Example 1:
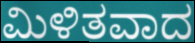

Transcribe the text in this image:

ಮಿಳಿತವಾದ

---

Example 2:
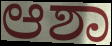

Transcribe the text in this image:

ಆಶಾ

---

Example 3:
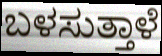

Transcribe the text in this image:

ಬಳಸುತ್ತಾಳೆ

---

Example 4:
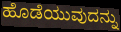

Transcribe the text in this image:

ಹೊಡೆಯುವುದನ್ನು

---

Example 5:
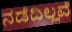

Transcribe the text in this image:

ನಡೆದಿಲ್ಲವೆ